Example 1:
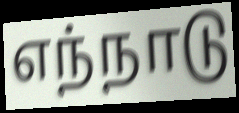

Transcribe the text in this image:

எந்நாடு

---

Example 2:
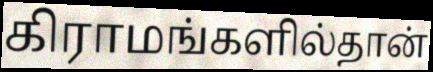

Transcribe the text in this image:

கிராமங்களில்தான்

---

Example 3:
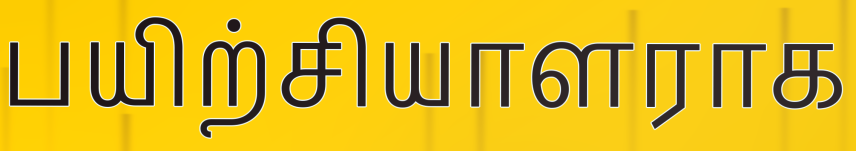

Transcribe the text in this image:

பயிற்சியாளராக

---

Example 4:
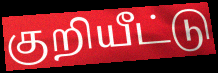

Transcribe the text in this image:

குறியீட்டு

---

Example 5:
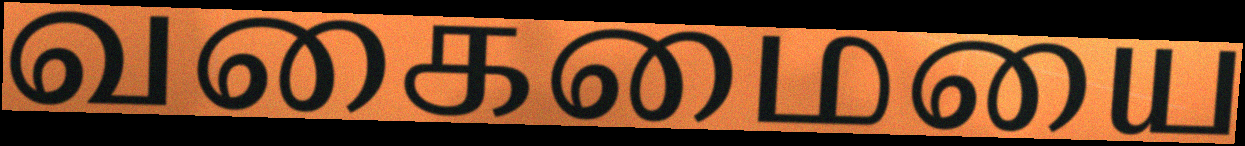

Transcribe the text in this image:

வகைமையை